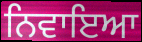
ਨਿਵਾਇਆ